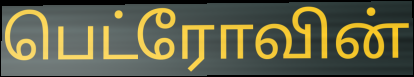
பெட்ரோவின்